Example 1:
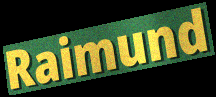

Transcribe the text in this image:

Raimund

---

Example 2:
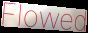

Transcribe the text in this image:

Flowed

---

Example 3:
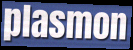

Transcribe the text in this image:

plasmon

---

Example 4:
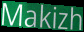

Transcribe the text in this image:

Makizh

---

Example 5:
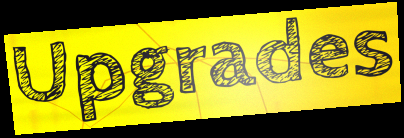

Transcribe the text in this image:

Upgrades